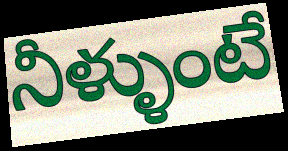
నీళ్ళుంటే